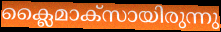
ക്ലൈമാക്സായിരുന്നു